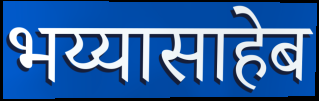
भय्यासाहेब